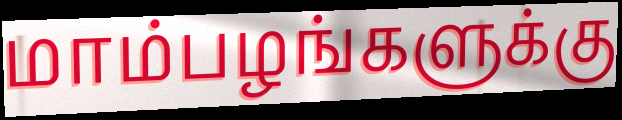
மாம்பழங்களுக்கு